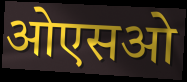
ओएसओ